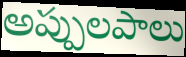
అప్పులపాలు